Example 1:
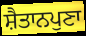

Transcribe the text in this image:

ਸ਼ੈਤਾਨਪੁਣਾ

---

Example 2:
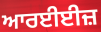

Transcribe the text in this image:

ਆਰਈਈਜ਼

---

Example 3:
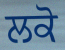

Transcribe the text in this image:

ਲਕੋ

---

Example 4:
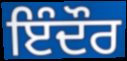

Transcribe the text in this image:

ਇੰਦੌਰ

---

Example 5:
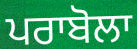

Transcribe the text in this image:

ਪਰਾਬੋਲਾ